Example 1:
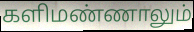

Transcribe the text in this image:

களிமண்ணாலும்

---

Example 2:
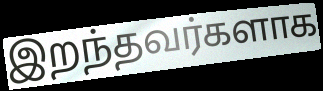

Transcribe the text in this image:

இறந்தவர்களாக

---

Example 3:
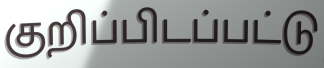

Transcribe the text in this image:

குறிப்பிடப்பட்டு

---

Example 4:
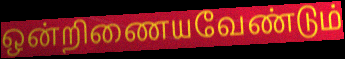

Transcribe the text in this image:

ஒன்றிணையவேண்டும்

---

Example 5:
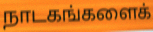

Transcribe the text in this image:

நாடகங்களைக்